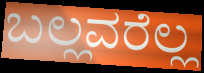
ಬಲ್ಲವರೆಲ್ಲ